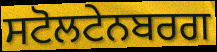
ਸਟੋਲਟੇਨਬਰਗ